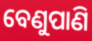
ବେଣୁପାଣି